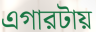
এগারটায়